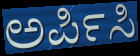
ಅರ್ಪಿಸಿ